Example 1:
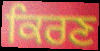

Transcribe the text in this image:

ਕਿਰਣ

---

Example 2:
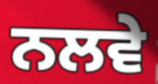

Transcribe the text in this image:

ਨਲਵੇ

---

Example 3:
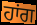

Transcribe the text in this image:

ਹਾਂਗ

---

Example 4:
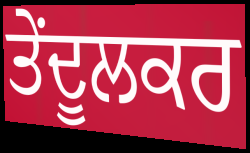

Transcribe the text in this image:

ਤੇਂਦੂਲਕਰ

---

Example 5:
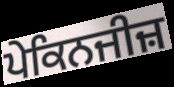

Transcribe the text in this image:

ਪੇਕਿਨਜੀਜ਼